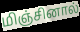
மிஞ்சினால்